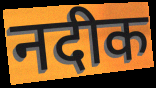
नदीक